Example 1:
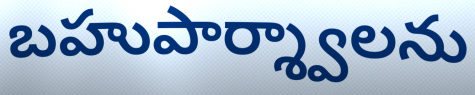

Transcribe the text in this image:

బహుపార్శ్వాలను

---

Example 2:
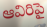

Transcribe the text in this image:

ఆవిరిపై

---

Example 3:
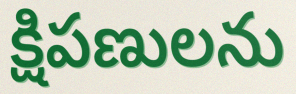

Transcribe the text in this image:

క్షిపణులను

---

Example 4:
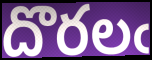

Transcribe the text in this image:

దొరలఁ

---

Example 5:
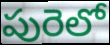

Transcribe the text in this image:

పురెలో